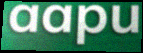
aapu